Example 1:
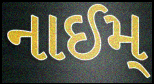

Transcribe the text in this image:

નાઈમ્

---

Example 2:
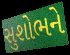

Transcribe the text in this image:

સુશોભને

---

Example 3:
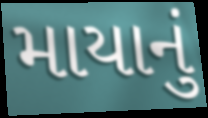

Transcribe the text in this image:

માયાનું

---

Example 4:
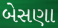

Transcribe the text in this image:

બેસણા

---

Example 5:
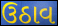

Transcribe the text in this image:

ઉઠાવ